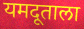
यमदूताला